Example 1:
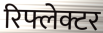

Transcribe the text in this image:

रिफ्लेक्टर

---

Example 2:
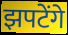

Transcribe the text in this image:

झपटेंगे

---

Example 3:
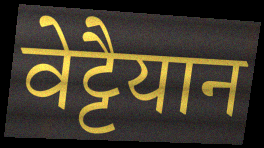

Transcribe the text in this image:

वेट्टैयान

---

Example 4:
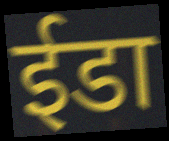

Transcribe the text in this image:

ईडा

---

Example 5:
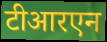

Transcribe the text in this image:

टीआरएन